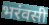
भरंवसी